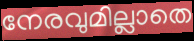
നേരവുമില്ലാതെ